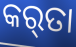
କର୍‌ତା